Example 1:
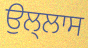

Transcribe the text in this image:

ਉਲ੍ਲਾਸ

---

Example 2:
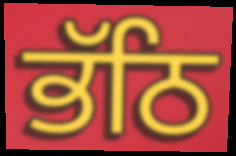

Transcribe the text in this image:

ਭੱਠਿ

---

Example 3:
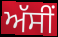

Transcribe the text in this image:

ਅੱਸੀਂ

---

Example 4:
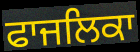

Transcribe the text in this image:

ਫਾਜਲਿਕਾ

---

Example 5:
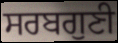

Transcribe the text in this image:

ਸਰਬਗੁਣੀ